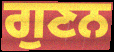
ਗੁਣਨ